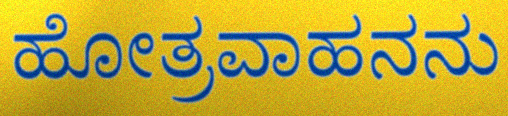
ಹೋತ್ರವಾಹನನು